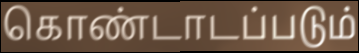
கொண்டாடப்படும்